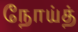
நோய்த்